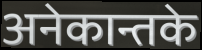
अनेकान्तके